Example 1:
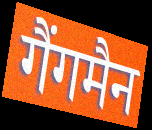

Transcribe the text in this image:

गैंगमैन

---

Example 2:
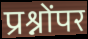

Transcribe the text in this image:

प्रश्नोंपर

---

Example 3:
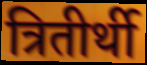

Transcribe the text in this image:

त्रितीर्थी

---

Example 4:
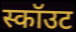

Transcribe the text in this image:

स्कॉउट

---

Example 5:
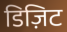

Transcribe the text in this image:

डिज़िट